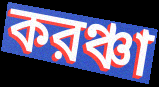
করঞ্চা